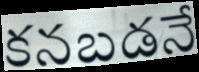
కనబడనే